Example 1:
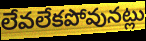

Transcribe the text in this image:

లేవలేకపోవునట్లు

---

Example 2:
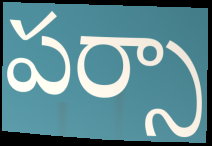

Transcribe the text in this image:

పర్సా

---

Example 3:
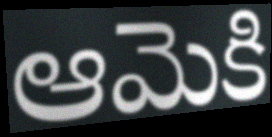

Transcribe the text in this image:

ఆమెకి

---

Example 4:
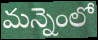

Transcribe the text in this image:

మన్నెంలో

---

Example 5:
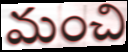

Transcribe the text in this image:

మంచి